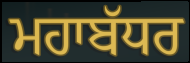
ਮਹਾਬੱਧਰ